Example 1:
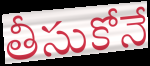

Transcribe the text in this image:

తీసుకోనే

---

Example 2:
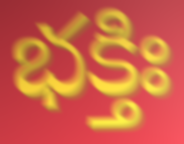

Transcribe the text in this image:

భక్తిః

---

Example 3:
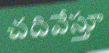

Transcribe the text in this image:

చదివేస్తూ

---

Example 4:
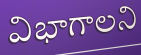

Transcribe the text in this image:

విభాగాలని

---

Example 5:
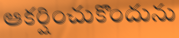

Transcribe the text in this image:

ఆకర్షించుకొందును